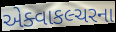
એક્વાકલ્ચરના